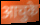
आचुके